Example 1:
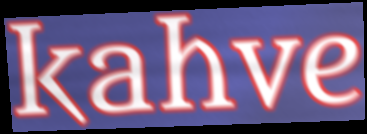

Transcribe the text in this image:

kahve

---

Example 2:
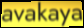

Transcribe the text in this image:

avakaya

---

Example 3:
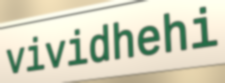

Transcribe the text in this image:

vividhehi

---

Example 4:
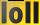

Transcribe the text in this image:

loll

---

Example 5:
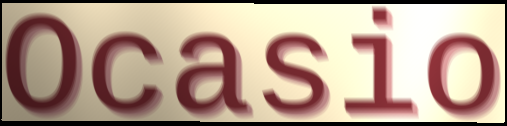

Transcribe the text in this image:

Ocasio